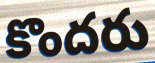
కొందరు